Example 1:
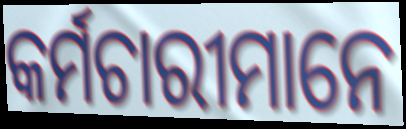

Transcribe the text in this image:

କର୍ମଚାରୀମାନେ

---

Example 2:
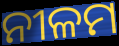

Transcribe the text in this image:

ନୀଳମ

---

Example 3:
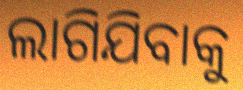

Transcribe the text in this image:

ଲାଗିଯିବାକୁ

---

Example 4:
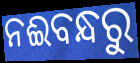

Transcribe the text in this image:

ନଈବନ୍ଧରୁ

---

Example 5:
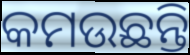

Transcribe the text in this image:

କମଉଛନ୍ତି